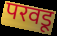
परवडू